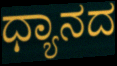
ಧ್ಯಾನದ